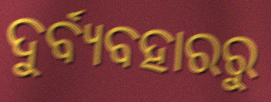
ଦୁର୍ବ୍ୟବହାରରୁ